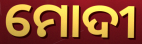
ମୋଦୀ